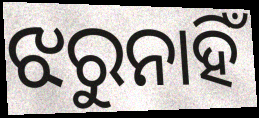
ଝରୁନାହିଁ